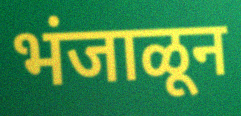
भंजाळून